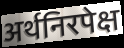
अर्थनिरपेक्ष